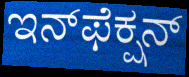
ಇನ್‌ಫೆಕ್ಷನ್